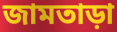
জামতাড়া